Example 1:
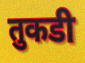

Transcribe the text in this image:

तुकडी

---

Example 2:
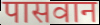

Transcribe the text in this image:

पासवान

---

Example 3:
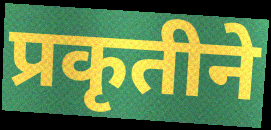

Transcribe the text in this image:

प्रकृतीने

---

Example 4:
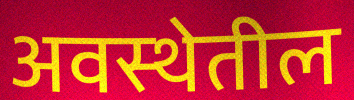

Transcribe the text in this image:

अवस्थेतील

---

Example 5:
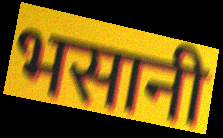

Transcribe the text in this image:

भसानी